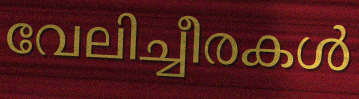
വേലിച്ചീരകൾ